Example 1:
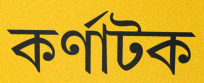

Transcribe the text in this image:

কৰ্ণাটক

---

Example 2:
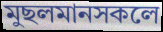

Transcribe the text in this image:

মুছলমানসকলে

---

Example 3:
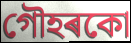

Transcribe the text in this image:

গৌহৰকো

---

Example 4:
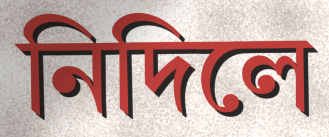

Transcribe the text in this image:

নিদিলে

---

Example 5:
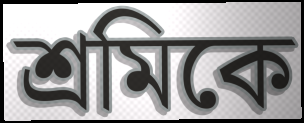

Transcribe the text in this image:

শ্ৰমিকে